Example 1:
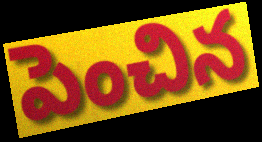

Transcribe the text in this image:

పెంచిన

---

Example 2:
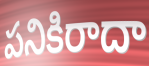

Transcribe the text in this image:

పనికిరాదా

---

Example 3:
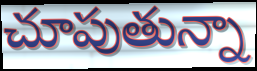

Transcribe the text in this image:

చూపుతున్నా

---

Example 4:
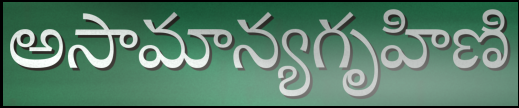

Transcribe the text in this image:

అసామాన్యగృహిణి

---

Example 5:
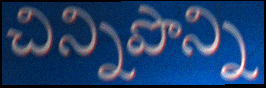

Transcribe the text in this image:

చిన్నిపొన్ని